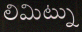
లిమిట్ను